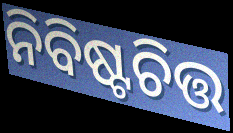
ନିବିଷ୍ଟଚିତ୍ତ